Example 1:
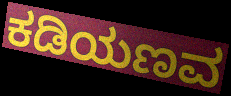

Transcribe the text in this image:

ಕಡಿಯಣವ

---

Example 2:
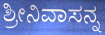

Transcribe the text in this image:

ಶ್ರೀನಿವಾಸನ್ನ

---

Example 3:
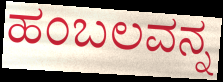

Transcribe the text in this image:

ಹಂಬಲವನ್ನ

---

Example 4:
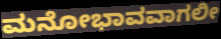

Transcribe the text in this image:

ಮನೋಭಾವವಾಗಲೀ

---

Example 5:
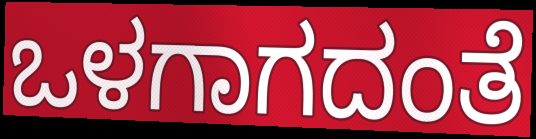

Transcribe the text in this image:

ಒಳಗಾಗದಂತೆ